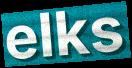
elks